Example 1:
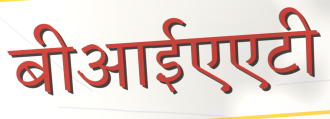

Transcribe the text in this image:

बीआईएएटी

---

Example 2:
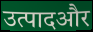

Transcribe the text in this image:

उत्पादऔर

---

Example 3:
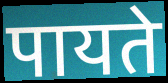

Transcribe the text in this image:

पायते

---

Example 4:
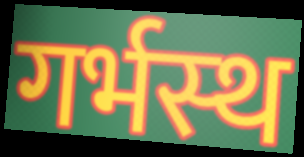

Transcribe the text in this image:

गर्भस्‍थ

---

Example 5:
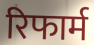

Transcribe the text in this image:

रिफार्म